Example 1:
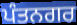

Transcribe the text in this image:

ਪੰਤਨਗਰ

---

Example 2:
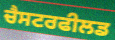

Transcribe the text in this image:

ਚੈਸਟਰਫੀਲਡ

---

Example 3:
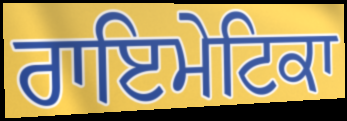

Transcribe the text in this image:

ਰਾਇਮੇਟਿਕਾ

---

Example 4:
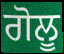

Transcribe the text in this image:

ਗੋਲੂ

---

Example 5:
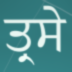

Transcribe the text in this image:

ਤ੍ਰਸੇ